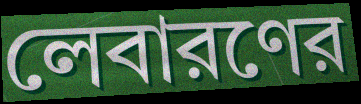
লেবারণের